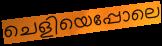
ചെളിയെപ്പോലെ